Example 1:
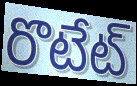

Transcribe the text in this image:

రొటేట్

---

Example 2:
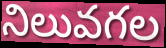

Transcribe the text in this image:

నిలువగల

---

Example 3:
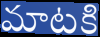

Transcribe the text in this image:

మాటకి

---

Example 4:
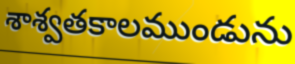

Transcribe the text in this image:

శాశ్వతకాలముండును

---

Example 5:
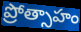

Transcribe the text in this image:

ప్రోత్సాహం